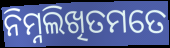
ନିମ୍ନଲିଖିତମତେ